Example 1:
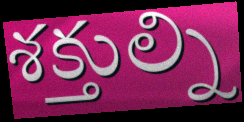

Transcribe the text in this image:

శక్తుల్ని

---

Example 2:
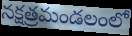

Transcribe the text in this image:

నక్షత్రమండలంలో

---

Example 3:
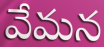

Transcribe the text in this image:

వేమన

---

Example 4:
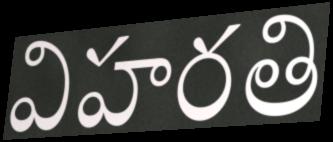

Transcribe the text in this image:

విహరతి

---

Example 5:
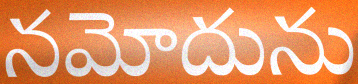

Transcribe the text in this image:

నమోదును